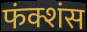
फंक्शंस